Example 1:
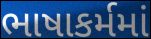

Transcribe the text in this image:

ભાષાકર્મમાં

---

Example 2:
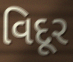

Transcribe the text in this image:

વિદૂર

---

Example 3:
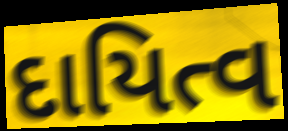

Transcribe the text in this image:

દાયિત્વ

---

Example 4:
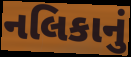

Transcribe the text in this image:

નલિકાનું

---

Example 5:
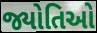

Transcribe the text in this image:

જ્યોતિઓ